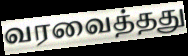
வரவைத்தது